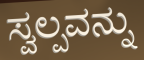
ಸ್ವಲ್ಪವನ್ನು